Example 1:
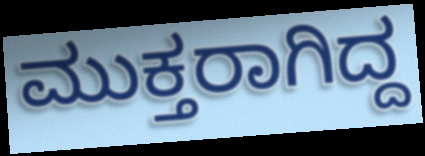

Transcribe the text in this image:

ಮುಕ್ತರಾಗಿದ್ದ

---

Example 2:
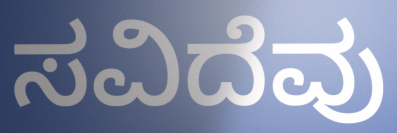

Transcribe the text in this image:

ಸವಿದೆವು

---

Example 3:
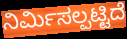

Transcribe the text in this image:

ನಿರ್ಮಿಸಲ್ಪಟ್ಟಿದೆ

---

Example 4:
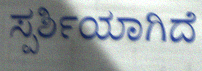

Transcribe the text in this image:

ಸ್ಪರ್ಶಿಯಾಗಿದೆ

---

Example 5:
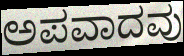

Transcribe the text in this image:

ಅಪವಾದವು